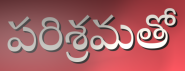
పరిశ్రమతో